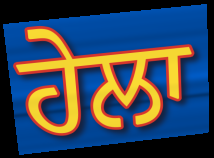
ਹੇਲਾ